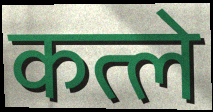
कत्ले